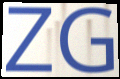
ZG